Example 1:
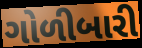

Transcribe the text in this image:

ગોળીબારી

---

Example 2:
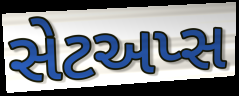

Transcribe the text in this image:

સેટઅપ્સ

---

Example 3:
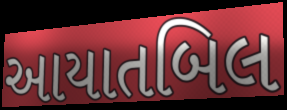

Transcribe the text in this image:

આયાતબિલ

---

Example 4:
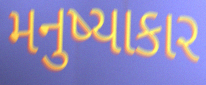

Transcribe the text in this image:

મનુષ્યાકાર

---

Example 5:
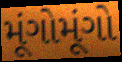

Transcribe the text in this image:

મૂંગોમૂંગો